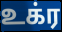
உக்ர